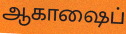
ஆகாஷைப்